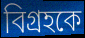
বিগ্রহকে